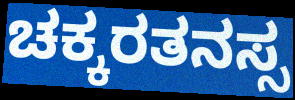
ಚಕ್ಕರತನಸ್ಸ